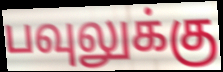
பவுலுக்கு